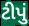
ટીપું